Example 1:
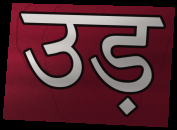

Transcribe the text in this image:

उड़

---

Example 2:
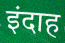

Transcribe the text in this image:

इंदाह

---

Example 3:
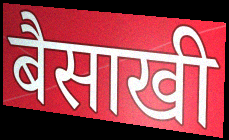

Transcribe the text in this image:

बैसाखी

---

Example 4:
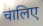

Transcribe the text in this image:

चालिए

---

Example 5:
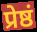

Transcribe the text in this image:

प्रेष्ठं